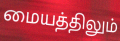
மையத்திலும்